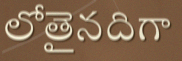
లోతైనదిగా